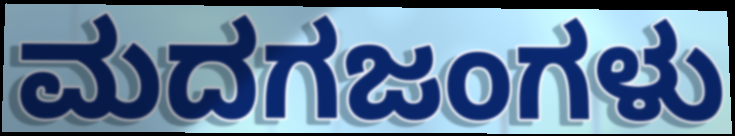
ಮದಗಜಂಗಳು